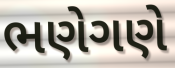
ભણેગણે